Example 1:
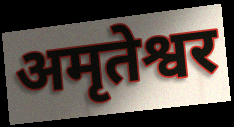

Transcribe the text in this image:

अमृतेश्वर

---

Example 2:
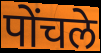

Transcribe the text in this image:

पोंचले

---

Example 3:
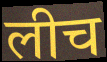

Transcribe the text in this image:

लीच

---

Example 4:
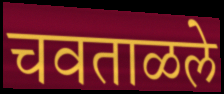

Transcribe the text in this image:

चवताळले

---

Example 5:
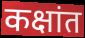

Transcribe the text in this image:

कक्षांत